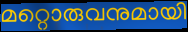
മറ്റൊരുവനുമായി